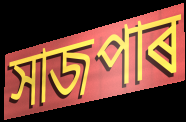
সাজপাৰ